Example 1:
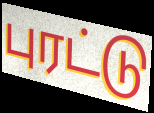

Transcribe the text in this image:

புரட்டு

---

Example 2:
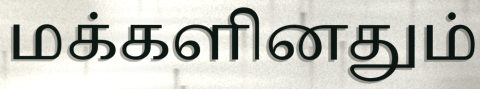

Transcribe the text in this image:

மக்களினதும்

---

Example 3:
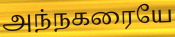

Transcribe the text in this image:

அந்நகரையே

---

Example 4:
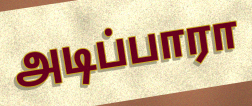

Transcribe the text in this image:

அடிப்பாரா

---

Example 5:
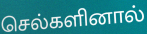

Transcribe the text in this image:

செல்களினால்